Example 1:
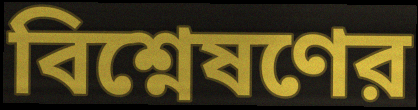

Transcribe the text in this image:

বিশ্নেষণের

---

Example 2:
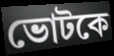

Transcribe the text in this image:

ভোটকে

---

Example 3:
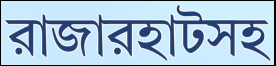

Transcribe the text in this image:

রাজারহাটসহ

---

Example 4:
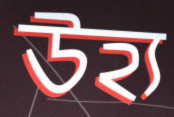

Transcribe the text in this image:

উহ্য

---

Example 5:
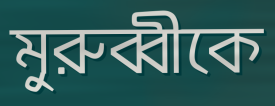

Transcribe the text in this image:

মুরুব্বীকে